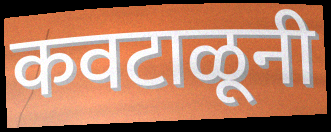
कवटाळूनी